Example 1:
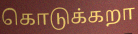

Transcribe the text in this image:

கொடுக்கறா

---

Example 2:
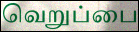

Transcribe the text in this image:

வெறுப்பை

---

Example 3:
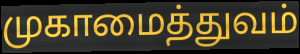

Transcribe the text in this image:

முகாமைத்துவம்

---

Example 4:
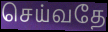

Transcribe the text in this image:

செய்வதே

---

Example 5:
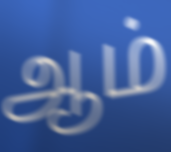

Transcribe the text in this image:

ஆம்